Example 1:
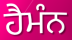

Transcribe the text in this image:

ਹੈਮੰਨ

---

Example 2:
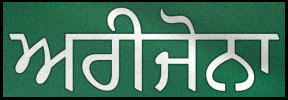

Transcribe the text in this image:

ਅਰੀਜੋਨਾ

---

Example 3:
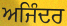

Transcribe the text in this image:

ਅਜਿੰਦਰ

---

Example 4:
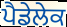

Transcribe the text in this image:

ਪੈਡੇਲੇਕ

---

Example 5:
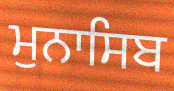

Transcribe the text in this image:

ਮੁਨਾਸਿਬ